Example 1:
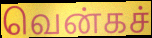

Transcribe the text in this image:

வென்கச்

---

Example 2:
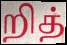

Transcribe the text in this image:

றித்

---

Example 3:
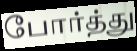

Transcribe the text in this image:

போர்த்து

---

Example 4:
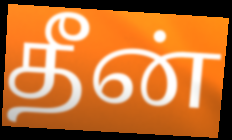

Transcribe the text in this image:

தீன்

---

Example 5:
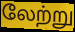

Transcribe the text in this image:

லேற்று